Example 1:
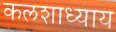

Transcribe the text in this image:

कलशाध्याय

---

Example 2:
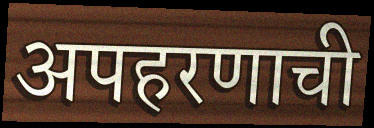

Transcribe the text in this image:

अपहरणाची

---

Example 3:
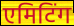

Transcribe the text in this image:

एमिटिंग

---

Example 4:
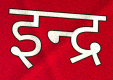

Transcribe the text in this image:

इन्द्र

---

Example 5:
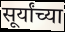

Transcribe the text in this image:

सूर्यांच्या